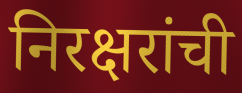
निरक्षरांची